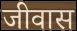
जीवास